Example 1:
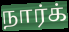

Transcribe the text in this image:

நார்க்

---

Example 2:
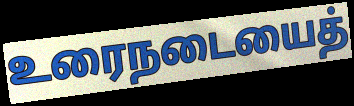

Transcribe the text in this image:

உரைநடையைத்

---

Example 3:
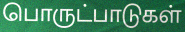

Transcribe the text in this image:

பொருட்பாடுகள்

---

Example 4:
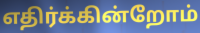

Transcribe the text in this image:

எதிர்க்கின்றோம்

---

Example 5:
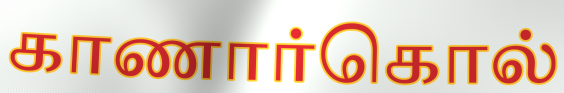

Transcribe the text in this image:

காணார்கொல்